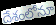
దేశంలోనూ